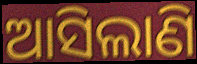
ଆସିଲାଣି